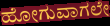
ಹೋಗುವಾಗಲೇ